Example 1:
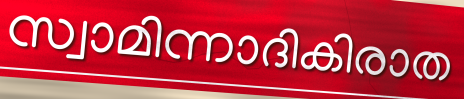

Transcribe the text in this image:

സ്വാമിന്നാദികിരാത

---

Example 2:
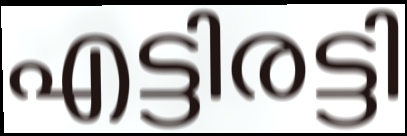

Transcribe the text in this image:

എട്ടിരട്ടി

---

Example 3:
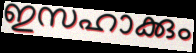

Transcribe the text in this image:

ഇസഹാക്കും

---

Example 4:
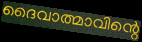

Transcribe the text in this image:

ദൈവാത്മാവിന്റെ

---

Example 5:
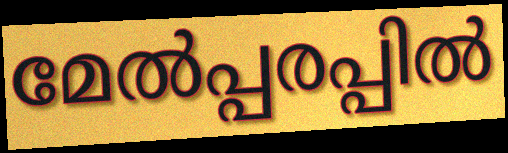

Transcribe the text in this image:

മേൽപ്പരപ്പിൽ